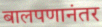
बालपणानंतर